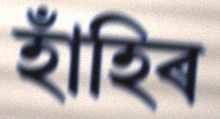
হাঁহিৰ